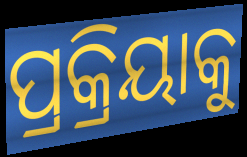
ପ୍ରକ୍ରିୟାକୁ